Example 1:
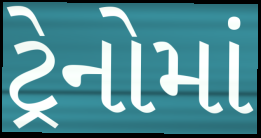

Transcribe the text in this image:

ટ્રેનોમાં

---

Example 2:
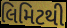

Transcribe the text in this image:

લિમિટથી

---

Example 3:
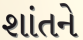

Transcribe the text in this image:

શાંતને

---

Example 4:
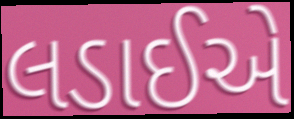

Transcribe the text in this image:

લડાઈએ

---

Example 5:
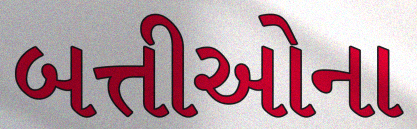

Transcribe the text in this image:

બત્તીઓના